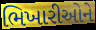
ભિખારીઓને